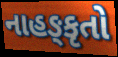
નાહઙ્કૃતો